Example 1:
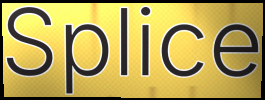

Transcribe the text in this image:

Splice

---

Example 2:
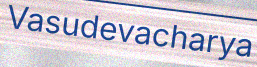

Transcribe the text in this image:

Vasudevacharya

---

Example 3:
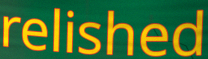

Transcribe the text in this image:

relished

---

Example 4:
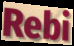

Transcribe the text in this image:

Rebi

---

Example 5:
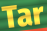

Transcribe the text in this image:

Tar